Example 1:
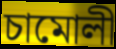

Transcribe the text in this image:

চামোলী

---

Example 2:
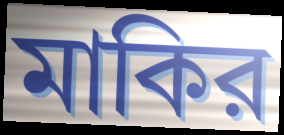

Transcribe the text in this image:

মাকির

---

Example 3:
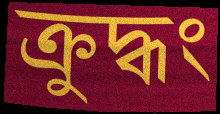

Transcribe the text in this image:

ক্রুদ্ধং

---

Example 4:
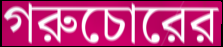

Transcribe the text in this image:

গরুচোরের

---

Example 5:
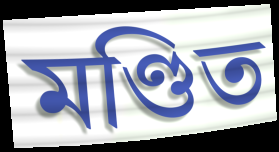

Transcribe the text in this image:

মণ্ডিত